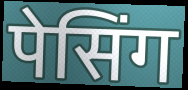
पेसिंग